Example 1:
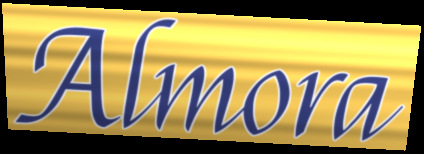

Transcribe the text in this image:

Almora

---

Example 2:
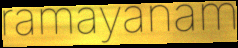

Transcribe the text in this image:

ramayanam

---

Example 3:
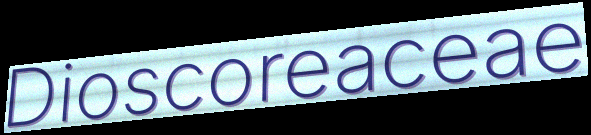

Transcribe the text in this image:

Dioscoreaceae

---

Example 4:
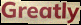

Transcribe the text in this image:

Greatly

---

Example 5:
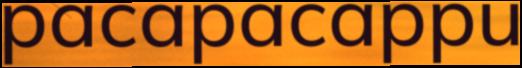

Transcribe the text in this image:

pacapacappu